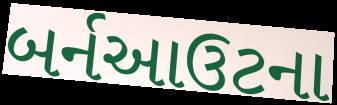
બર્નઆઉટના